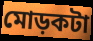
মোড়কটা